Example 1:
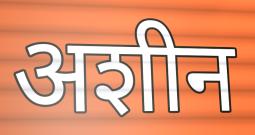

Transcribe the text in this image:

अशीन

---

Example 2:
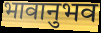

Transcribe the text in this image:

भावानुभव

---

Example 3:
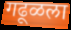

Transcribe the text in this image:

गढूळला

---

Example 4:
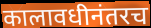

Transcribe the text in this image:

कालावधीनंतरच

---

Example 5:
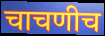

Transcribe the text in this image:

चाचणीच